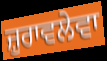
ਜ਼ੁਰਾਵਲੇਵਾ